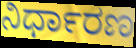
ನಿರ್ಧಾರಣ